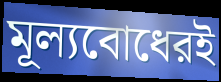
মূল্যবোধেরই